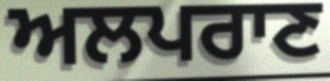
ਅਲਪਰਾਣ